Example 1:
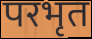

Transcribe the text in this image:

परभृत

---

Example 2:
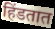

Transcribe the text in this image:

हिंडतात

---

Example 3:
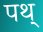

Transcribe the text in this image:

पथ्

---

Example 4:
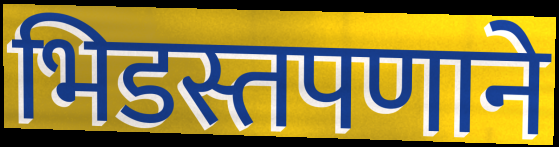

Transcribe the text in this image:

भिडस्तपणाने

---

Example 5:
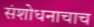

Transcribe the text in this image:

संशोधनाचाच